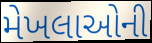
મેખલાઓની